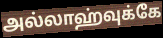
அல்லாஹ்வுக்கே